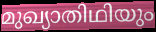
മുഖ്യാതിഥിയും